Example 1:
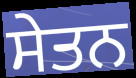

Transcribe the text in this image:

ਸੇਤਨ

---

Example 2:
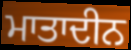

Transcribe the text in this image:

ਮਾਤਾਦੀਨ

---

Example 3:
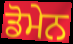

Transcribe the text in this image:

ਡੋਮੇਨ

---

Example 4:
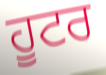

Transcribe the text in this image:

ਹੂਟਰ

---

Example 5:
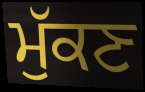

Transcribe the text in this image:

ਮੁੱਕਣ